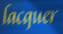
lacquer